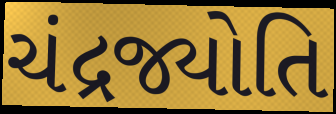
ચંદ્રજ્યોતિ